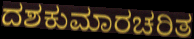
ದಶಕುಮಾರಚರಿತ